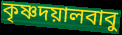
কৃষ্ণদয়ালবাবু